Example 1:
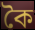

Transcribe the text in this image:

কৈ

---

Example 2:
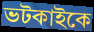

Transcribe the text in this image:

ভটকাইকে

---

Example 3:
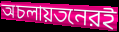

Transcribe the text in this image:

অচলায়তনেরই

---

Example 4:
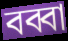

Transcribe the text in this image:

বব্বা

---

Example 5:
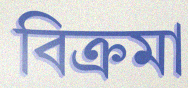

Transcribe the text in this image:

বিক্রমা